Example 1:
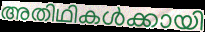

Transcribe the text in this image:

അതിഥികൾക്കായി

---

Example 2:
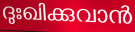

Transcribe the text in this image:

ദുഃഖിക്കുവാൻ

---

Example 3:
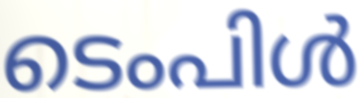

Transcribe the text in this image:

ടെംപിൾ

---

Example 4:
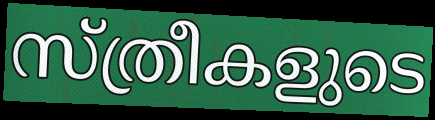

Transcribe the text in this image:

സ്ത്രീകളുടെ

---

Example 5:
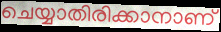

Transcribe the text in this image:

ചെയ്യാതിരിക്കാനാണ്